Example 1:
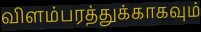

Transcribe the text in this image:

விளம்பரத்துக்காகவும்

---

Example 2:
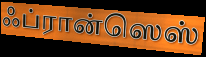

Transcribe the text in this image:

ஃப்ரான்ஸெஸ்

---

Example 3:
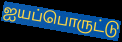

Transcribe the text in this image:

ஐயப்பொருட்டு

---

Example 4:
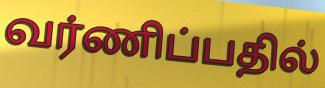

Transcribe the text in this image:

வர்ணிப்பதில்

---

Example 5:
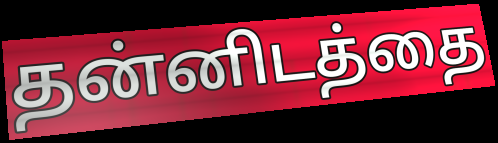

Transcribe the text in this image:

தன்னிடத்தை